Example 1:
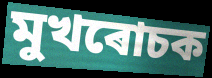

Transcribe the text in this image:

মুখৰোচক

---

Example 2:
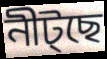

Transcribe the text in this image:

নীট্‌ছে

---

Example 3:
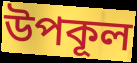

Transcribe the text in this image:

উপকূল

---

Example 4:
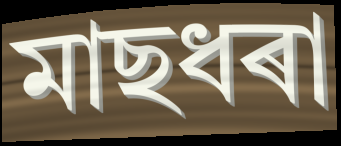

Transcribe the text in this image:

মাছধৰা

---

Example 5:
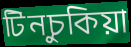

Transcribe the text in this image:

টিনচুকিয়া